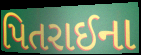
પિતરાઈના